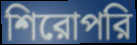
শিরোপরি